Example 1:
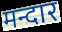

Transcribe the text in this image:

मन्दार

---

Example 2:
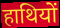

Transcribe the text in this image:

हाथियों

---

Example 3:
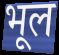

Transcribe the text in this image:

भूल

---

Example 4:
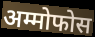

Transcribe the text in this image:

अम्मोफोस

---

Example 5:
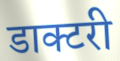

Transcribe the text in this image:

डाक्टरी